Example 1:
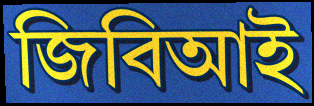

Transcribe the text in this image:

জিবিআই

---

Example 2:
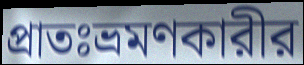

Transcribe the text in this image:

প্রাতঃভ্রমণকারীর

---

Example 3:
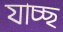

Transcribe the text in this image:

যাচ্ছ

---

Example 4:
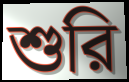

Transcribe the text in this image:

শুরি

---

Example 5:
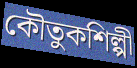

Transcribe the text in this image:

কৌতুকশিল্পী